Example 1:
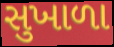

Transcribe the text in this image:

સુખાળા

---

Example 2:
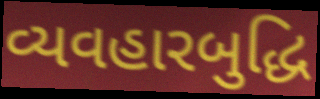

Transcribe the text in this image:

વ્યવહારબુદ્ધિ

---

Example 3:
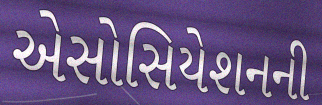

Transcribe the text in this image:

એસોસિયેશનની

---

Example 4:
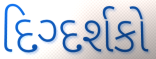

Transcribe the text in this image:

દિગ્દર્શકો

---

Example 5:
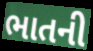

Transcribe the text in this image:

ભાતની